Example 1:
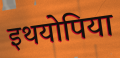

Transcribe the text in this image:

इथयोपिया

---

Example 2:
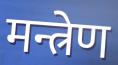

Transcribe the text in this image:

मन्त्रेण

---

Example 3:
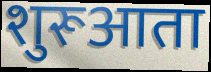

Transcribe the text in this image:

शुरूआता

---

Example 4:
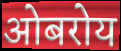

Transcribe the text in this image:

ओबरोय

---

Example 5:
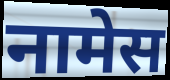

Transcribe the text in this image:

नामेस